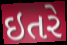
ઇતરે